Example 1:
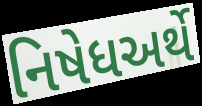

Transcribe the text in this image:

નિષેધઅર્થે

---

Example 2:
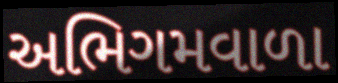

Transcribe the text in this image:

અભિગમવાળા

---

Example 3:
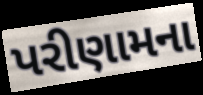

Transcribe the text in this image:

પરીણામના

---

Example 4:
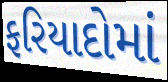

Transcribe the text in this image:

ફરિયાદોમાં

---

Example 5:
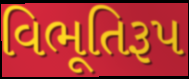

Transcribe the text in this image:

વિભૂતિરૂપ